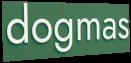
dogmas